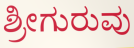
ಶ್ರೀಗುರುವು